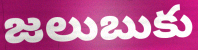
జలుబుకు